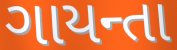
ગાયન્તા